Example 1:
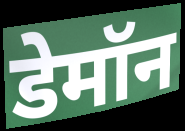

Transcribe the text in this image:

डेमॉन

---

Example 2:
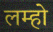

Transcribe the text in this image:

लम्हो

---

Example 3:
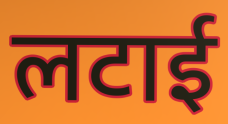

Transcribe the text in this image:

लटाई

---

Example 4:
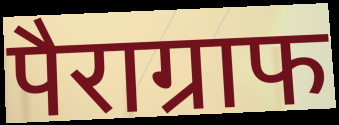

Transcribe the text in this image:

पैराग्राफ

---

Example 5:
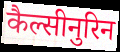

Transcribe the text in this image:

कैल्सीनुरिन